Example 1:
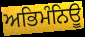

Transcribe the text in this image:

ਅਭਿਮੰਨਿਊ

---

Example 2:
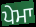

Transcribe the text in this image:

ਪੇਮਾ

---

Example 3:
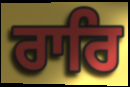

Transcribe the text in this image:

ਰਾਰਿ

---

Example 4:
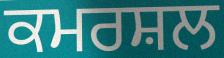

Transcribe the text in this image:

ਕਮਰਸ਼ਲ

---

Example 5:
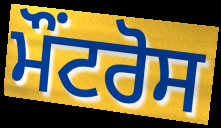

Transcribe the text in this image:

ਮੌਂਟਰੋਸ